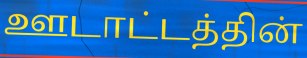
ஊடாட்டத்தின்